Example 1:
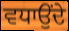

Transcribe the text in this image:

ਵਧਾਉੁਂਦੇ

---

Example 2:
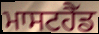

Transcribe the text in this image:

ਮਾਸਟਹੈੱਡ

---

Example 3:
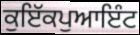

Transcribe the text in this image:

ਕੁਇੱਕਪੁਆਇੰਟ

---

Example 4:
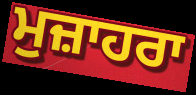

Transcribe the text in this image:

ਮੁਜ਼ਾਹਰਾ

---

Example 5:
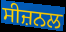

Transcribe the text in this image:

ਸੀਜ਼ਨਲ